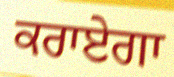
ਕਰਾਏਗਾ